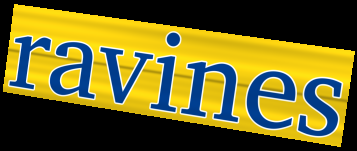
ravines